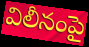
విలీనంపై